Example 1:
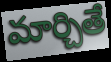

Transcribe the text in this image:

మార్చితే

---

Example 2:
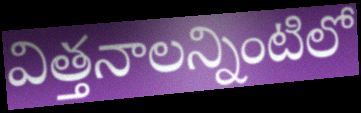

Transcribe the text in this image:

విత్తనాలన్నింటిలో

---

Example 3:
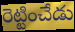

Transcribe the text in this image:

రెట్టించేడు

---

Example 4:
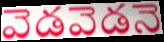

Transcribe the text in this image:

వెడవెడనె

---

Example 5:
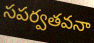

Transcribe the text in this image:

సపర్వతవనా